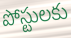
పోస్టులకు